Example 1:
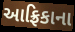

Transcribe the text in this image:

આફ્રિકાના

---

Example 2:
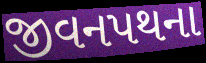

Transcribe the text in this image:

જીવનપથના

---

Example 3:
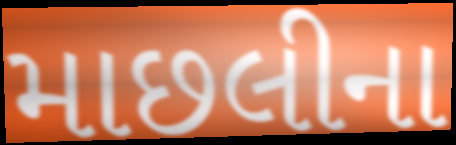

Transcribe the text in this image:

માછલીના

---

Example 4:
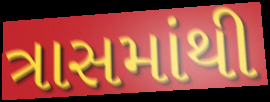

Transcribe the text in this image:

ત્રાસમાંથી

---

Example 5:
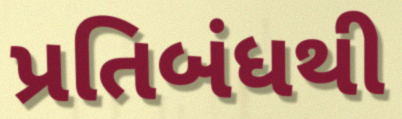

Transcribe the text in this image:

પ્રતિબંધથી